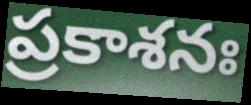
ప్రకాశనః